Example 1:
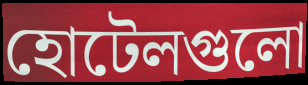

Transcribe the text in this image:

হোটেলগুলো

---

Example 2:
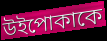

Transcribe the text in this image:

উইপোকাকে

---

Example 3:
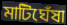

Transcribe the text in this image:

মাটিঘেঁষা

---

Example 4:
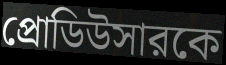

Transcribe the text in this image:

প্রোডিউসারকে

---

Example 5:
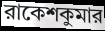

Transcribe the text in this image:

রাকেশকুমার